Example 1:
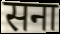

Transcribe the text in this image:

सना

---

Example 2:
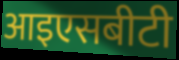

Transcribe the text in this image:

आइएसबीटी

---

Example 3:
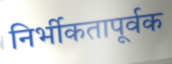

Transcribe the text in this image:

निर्भीकतापूर्वक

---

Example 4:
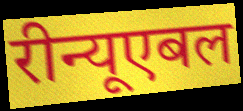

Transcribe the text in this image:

रीन्यूएबल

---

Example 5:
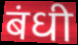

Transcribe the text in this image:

बंधी